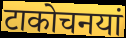
टाकोचनयां